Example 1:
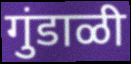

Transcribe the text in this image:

गुंडाळी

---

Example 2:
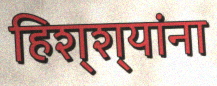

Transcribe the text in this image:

हिश्श्यांना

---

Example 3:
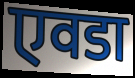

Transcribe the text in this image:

एवडा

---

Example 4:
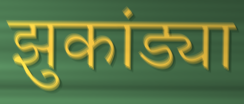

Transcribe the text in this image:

झुकांड्या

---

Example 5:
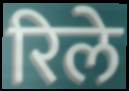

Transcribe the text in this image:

रिले